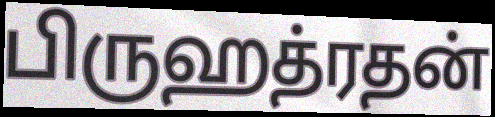
பிருஹத்ரதன்